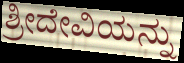
ಶ್ರೀದೇವಿಯನ್ನು